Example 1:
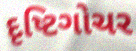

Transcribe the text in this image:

દૃષ્ટિગોચર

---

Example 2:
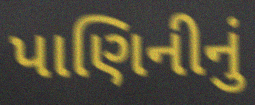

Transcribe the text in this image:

પાણિનીનું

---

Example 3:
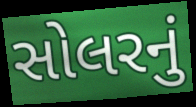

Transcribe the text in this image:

સોલરનું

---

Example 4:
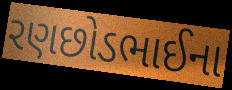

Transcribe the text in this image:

રણછોડભાઈના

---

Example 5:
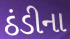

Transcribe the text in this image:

ઠંડીના